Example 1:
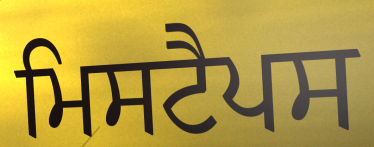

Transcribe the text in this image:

ਮਿਸਟੈਪਸ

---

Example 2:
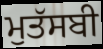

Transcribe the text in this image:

ਮੁਤੱਸਬੀ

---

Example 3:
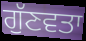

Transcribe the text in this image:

ਗੁੱਣਵਤਾ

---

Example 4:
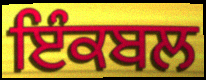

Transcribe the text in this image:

ਇੰਕਬਲ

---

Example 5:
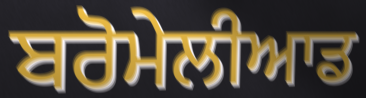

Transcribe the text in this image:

ਬਰੋਮੇਲੀਆਡ